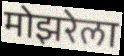
मोझरेला